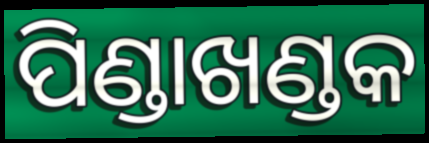
ପିଣ୍ଡାଖଣ୍ଡକ